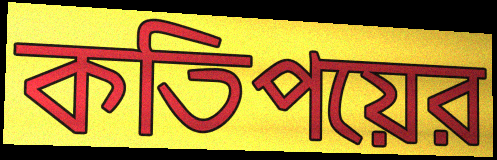
কতিপয়ের